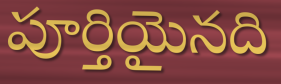
పూర్తియైనది